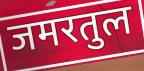
जमरतुल